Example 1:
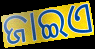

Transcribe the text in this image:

ଜାଇଏ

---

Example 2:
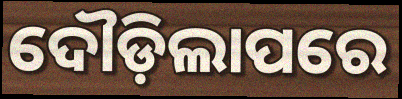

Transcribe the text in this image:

ଦୌଡ଼ିଲାପରେ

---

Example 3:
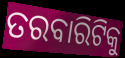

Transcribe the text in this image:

ତରବାରିଟିକୁ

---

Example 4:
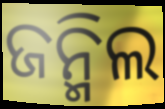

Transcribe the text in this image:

ଜନ୍ମିଲ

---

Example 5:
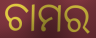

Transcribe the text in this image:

ଚାମର